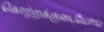
கொற்றக்குடையோய்